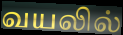
வயலில்